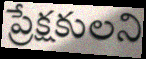
ప్రేక్షకులని